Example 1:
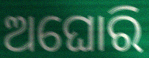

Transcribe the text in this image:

ଅଘୋରି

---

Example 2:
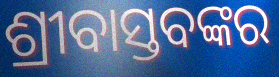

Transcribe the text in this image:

ଶ୍ରୀବାସ୍ତବଙ୍କର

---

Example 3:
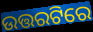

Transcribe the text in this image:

ଉତ୍ତରଟିରେ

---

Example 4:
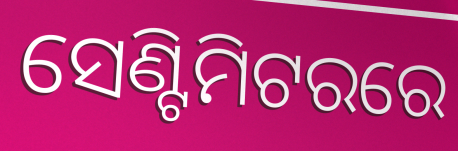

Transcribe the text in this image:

ସେଣ୍ଟିମିଟରରେ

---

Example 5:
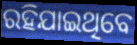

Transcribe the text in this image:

ରହିଯାଇଥିବେ